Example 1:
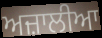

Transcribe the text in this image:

ਅਜ਼ਾਲੀਆ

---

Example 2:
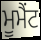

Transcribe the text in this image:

ਮੂਮੈਂਟ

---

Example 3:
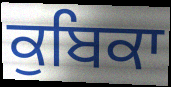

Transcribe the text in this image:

ਕੁਬਿਕਾ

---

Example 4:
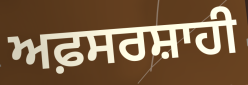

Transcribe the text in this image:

ਅਫ਼ਸਰਸ਼ਾਹੀ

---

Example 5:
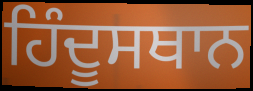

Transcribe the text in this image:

ਹਿੰਦੂਸਥਾਨ